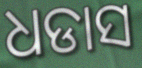
ଧଡାସ